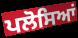
ਪਲੋਸਿਆਂ